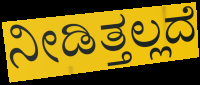
ನೀಡಿತ್ತಲ್ಲದೆ